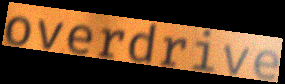
overdrive